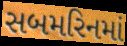
સબમરિનમાં